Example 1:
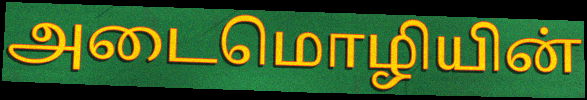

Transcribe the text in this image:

அடைமொழியின்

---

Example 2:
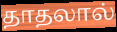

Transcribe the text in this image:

தாதலால்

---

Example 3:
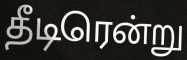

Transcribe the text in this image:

தீடிரென்று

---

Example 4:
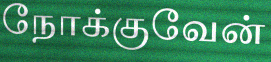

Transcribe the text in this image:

நோக்குவேன்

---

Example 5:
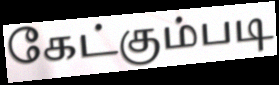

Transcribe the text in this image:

கேட்கும்படி